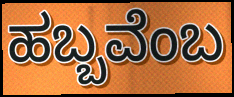
ಹಬ್ಬವೆಂಬ